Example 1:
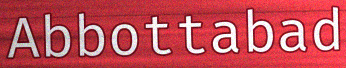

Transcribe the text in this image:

Abbottabad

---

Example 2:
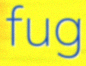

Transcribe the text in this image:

fug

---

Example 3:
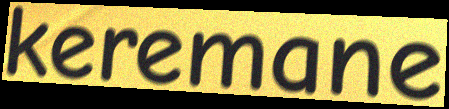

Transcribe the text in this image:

keremane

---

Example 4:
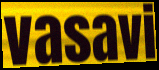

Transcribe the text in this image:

vasavi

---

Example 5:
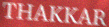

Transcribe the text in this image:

THAKKAR